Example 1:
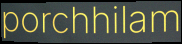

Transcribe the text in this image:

porchhilam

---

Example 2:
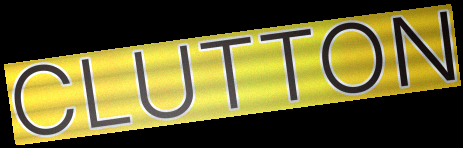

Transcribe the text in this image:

CLUTTON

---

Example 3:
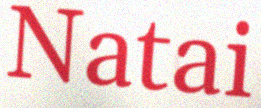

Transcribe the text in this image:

Natai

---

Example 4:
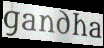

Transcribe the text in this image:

gandha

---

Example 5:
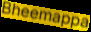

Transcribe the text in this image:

Bheemappa